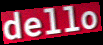
dello